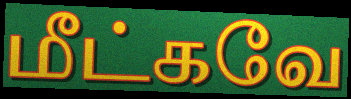
மீட்கவே